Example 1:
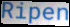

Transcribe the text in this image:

Ripen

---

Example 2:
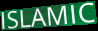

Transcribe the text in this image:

ISLAMIC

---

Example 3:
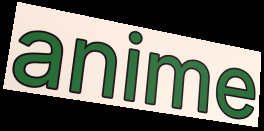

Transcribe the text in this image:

anime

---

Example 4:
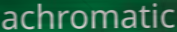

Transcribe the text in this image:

achromatic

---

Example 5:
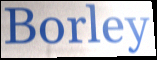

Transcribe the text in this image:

Borley